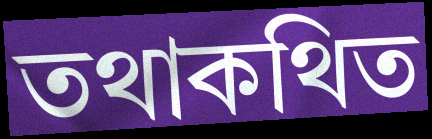
তথাকথিত